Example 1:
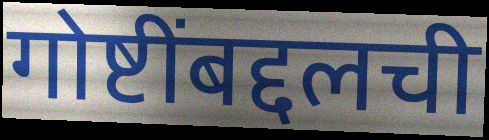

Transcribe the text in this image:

गोष्टींबद्दलची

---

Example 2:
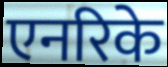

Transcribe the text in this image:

एनरिके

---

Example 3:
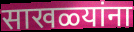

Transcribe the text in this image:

साखळ्यांना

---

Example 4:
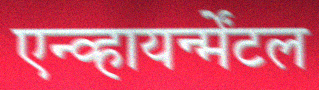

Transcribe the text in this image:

एन्व्हायर्न्मेंटल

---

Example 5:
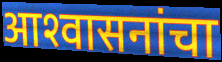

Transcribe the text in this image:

आश्वासनांचा